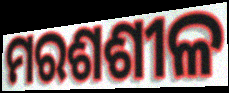
ମରଶଶୀଳ